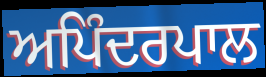
ਅਪਿੰਦਰਪਾਲ